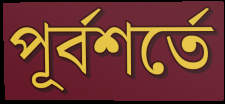
পূর্বশর্তে